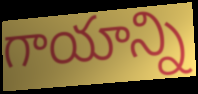
గాయాన్ని